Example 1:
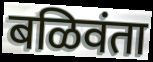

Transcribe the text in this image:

बळिवंता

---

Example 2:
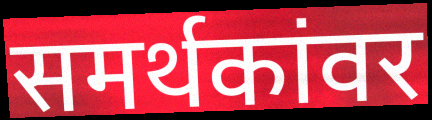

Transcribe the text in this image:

समर्थकांवर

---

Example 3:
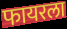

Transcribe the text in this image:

फायरला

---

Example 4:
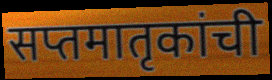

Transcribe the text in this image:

सप्तमातृकांची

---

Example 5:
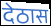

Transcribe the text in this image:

देठास